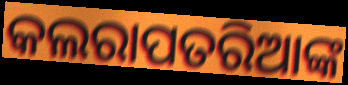
କଲରାପତରିଆଙ୍କ